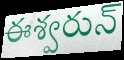
ఈశ్వరున్